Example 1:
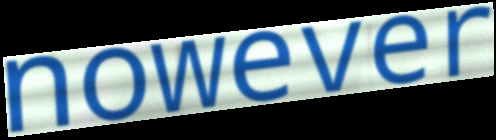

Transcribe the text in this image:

nowever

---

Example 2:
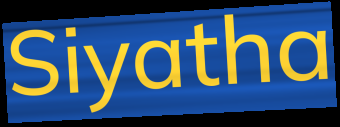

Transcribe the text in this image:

Siyatha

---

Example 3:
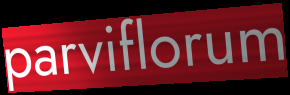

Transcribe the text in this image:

parviflorum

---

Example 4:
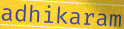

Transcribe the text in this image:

adhikaram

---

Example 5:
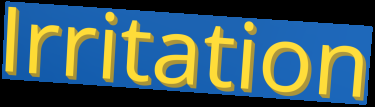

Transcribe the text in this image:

Irritation